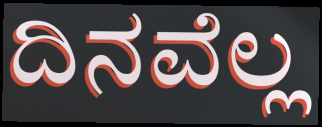
ದಿನವೆಲ್ಲ